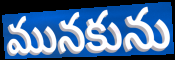
మునకును